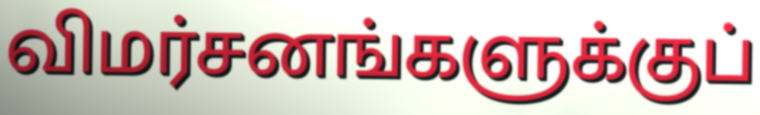
விமர்சனங்களுக்குப்